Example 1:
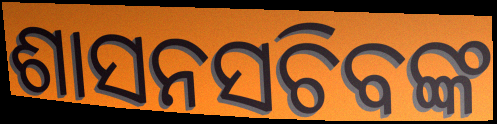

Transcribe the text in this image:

ଶାସନସଚିବଙ୍କ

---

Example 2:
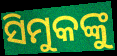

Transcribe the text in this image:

ସିମୁକଙ୍କୁ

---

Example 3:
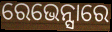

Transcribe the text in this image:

ରେଭେନ୍ସାରେ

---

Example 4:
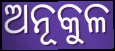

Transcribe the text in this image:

ଅନୂକୁଳ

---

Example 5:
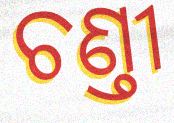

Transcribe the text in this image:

ଚଣ୍ତୀ